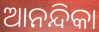
ଆନନ୍ଦିକା